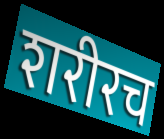
शरीरच